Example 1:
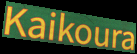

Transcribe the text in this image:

Kaikoura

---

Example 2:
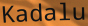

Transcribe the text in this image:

Kadalu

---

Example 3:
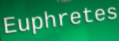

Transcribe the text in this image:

Euphretes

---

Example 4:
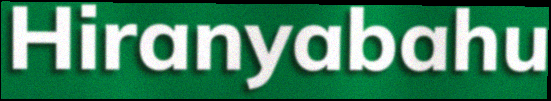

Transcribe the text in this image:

Hiranyabahu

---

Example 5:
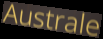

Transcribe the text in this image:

Australe